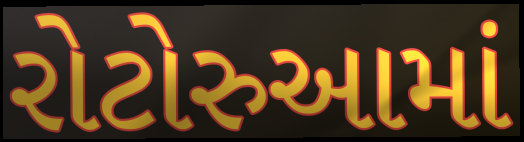
રોટોરુઆમાં